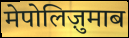
मेपोलिज़ुमाब